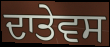
ਦਾਤੇਵਸ